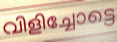
വിളിച്ചോട്ടെ